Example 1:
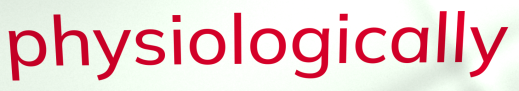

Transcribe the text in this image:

physiologically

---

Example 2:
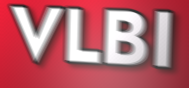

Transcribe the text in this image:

VLBI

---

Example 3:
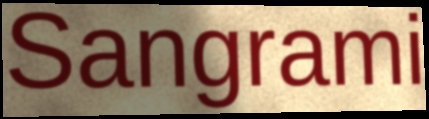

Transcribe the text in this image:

Sangrami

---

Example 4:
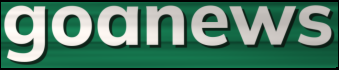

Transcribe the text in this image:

goanews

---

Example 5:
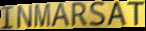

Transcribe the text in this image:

INMARSAT